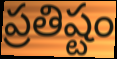
ప్రతిష్టం